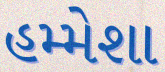
હમ્મેશા